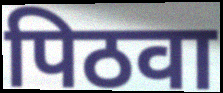
पिठवा